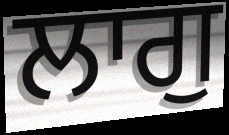
ਲਾਗੁ